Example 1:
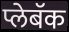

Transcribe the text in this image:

प्लेबॅक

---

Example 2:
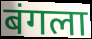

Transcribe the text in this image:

बंगला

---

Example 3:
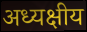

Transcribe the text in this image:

अध्यक्षीय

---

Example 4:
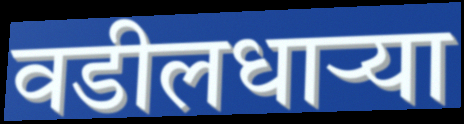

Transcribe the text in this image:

वडीलधार्‍या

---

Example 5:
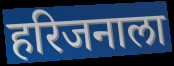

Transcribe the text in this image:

हरिजनाला